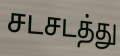
சடசடத்து